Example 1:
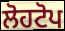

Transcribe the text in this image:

ਲੋਹਟੋਪ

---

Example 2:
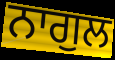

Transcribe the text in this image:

ਨਾਗੁਲ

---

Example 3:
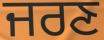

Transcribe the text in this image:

ਜਰਣ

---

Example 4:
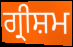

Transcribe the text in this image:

ਗ੍ਰੀਸ਼ਮ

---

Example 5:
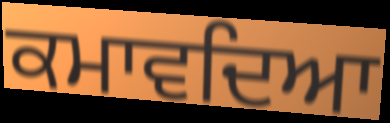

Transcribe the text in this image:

ਕਮਾਵਦਿਆ